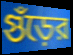
গুঁড়ের